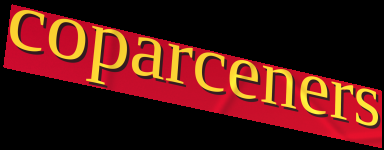
coparceners